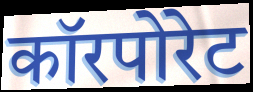
कॉरपोरेट